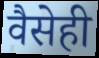
वैसेही